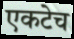
एकटेच